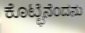
ಕೊಟ್ಟೆನೆಂದನು